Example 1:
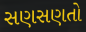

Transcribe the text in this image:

સણસણતો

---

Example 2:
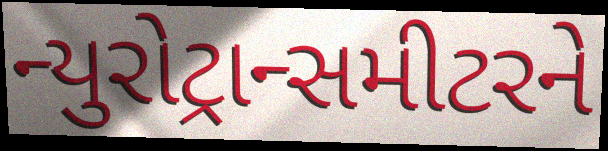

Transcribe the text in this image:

ન્યુરોટ્રાન્સમીટરને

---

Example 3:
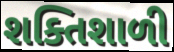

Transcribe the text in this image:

શક્તિશાળી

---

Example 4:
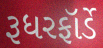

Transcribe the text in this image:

રૂધરફૉર્ડે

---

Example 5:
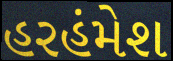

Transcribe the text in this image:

હરહંમેશ